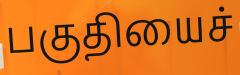
பகுதியைச்